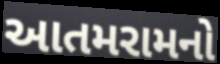
આતમરામનો